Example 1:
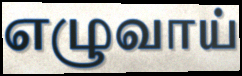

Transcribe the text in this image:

எழுவாய்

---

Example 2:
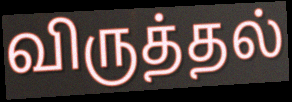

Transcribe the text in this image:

விருத்தல்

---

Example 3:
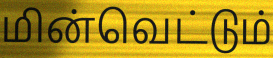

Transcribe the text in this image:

மின்வெட்டும்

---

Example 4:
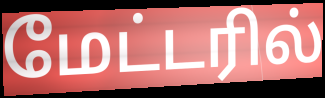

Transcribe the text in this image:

மேட்டரில்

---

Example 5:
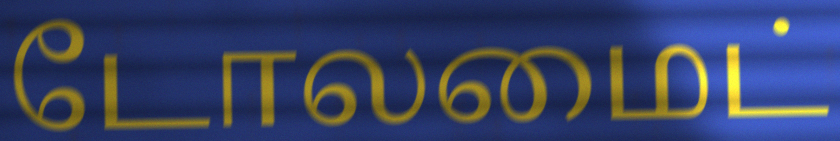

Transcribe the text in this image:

டோலமைட்